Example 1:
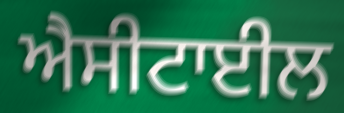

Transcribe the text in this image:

ਐਸੀਟਾਈਲ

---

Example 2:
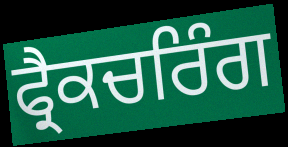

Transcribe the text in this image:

ਫ੍ਰੈਕਚਰਿੰਗ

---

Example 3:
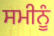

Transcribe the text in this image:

ਸਮੀਨੂੰ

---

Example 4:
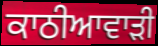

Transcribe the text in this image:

ਕਾਠੀਆਵਾੜੀ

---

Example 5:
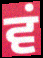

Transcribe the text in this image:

ਵਂ